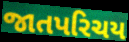
જાતપરિચય